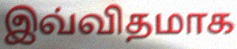
இவ்விதமாக